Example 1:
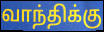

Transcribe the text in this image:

வாந்திக்கு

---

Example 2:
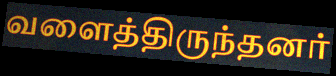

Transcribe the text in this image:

வளைத்திருந்தனர்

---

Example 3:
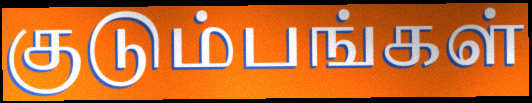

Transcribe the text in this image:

குடும்பங்கள்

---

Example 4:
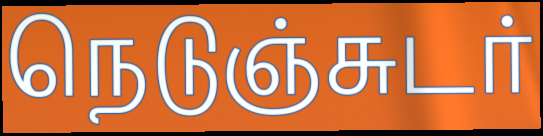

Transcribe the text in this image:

நெடுஞ்சுடர்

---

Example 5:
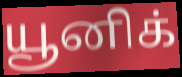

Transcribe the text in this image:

யூனிக்